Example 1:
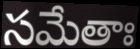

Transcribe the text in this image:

సమేతాః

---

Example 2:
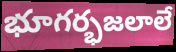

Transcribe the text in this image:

భూగర్భజలాలే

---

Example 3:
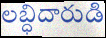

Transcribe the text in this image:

లబ్ధిదారుడి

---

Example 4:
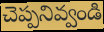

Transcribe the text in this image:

చెప్పనివ్వండి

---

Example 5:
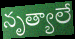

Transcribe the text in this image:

నృత్యాలే